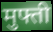
मुफ्ती